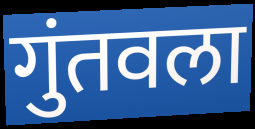
गुंतवला